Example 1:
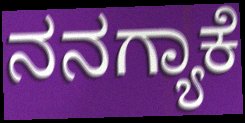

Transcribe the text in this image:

ನನಗ್ಯಾಕೆ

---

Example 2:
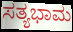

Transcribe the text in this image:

ಸತ್ಯಭಾಮ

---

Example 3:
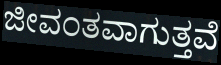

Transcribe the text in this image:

ಜೀವಂತವಾಗುತ್ತವೆ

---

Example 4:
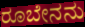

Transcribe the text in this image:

ರೂಬೇನನು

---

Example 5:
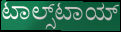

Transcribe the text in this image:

ಟಾಲ್ಸ್‌ಟಾಯ್